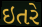
ઇતરે